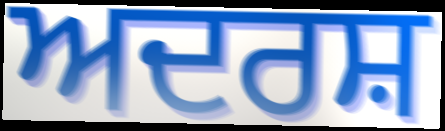
ਅਦਰਸ਼